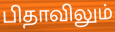
பிதாவிலும்